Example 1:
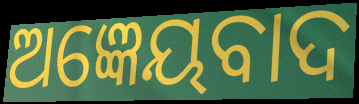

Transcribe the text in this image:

ଅଜ୍ଞେୟବାଦ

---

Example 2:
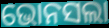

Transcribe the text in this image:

ଭୋନସଲା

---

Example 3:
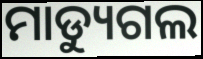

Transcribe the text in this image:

ମାଡ୍ୟୁଗଲ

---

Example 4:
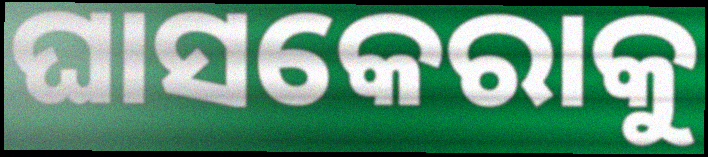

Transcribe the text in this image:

ଘାସକେରାକୁ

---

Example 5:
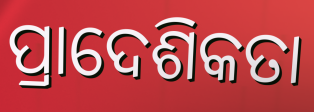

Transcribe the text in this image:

ପ୍ରାଦେଶିକତା